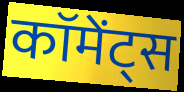
कॉमेंट्स